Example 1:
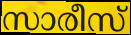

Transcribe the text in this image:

സാരീസ്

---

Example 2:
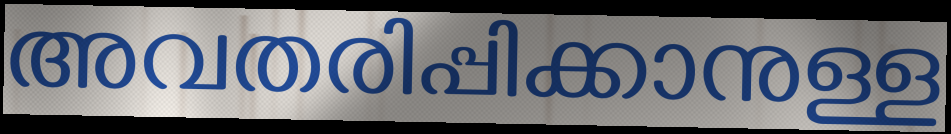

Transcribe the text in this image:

അവതരിപ്പിക്കാനുള്ള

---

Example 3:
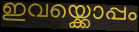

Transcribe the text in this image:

ഇവയ്ക്കൊപ്പം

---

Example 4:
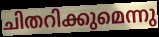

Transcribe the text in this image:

ചിതറിക്കുമെന്നു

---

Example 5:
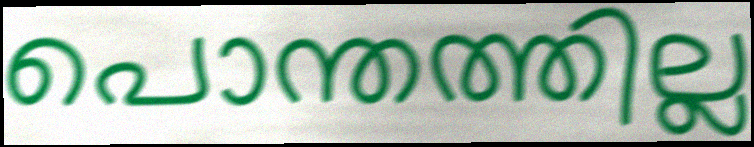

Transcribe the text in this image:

പൊന്തത്തില്ല